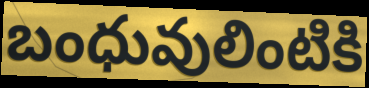
బంధువులింటికి